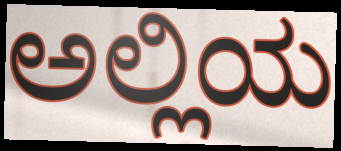
ಅಲ್ಲಿಯ